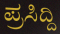
ಪ್ರಸಿದ್ದಿ